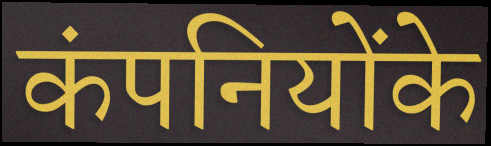
कंपनियोंके